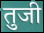
तुजी